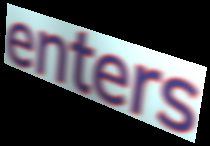
enters